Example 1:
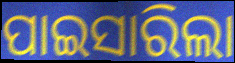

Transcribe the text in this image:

ପାଇସାରିଲା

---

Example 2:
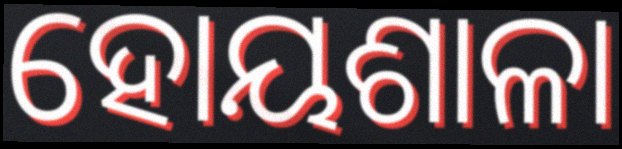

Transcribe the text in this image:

ହୋୟଶାଳା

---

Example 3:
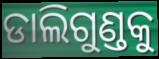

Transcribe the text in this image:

ଡାଲିଗୁଣ୍ଡକୁ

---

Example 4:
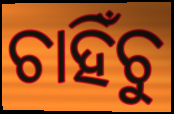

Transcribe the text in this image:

ଚାହିଁଚୁ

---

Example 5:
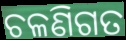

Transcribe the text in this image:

ଚଳଣିଗତ